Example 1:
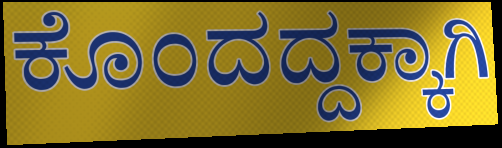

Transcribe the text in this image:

ಕೊಂದದ್ದಕ್ಕಾಗಿ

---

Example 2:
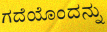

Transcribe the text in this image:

ಗದೆಯೊಂದನ್ನು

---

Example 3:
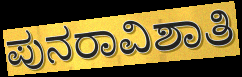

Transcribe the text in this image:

ಪುನರಾವಿಶಾತಿ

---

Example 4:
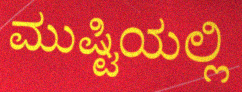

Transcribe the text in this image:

ಮುಷ್ಟಿಯಲ್ಲಿ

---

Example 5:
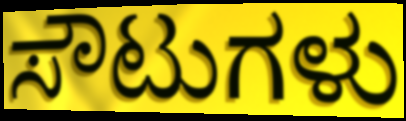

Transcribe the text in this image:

ಸೌಟುಗಳು